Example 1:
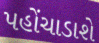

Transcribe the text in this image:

પહોંચાડાશે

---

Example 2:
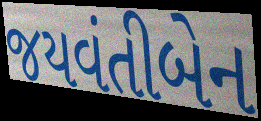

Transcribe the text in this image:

જયવંતીબેન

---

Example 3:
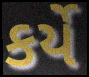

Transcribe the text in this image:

કર્યે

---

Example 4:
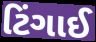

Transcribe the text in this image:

ટિંગાઈ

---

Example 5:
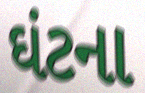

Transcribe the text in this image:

ઘંટના